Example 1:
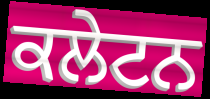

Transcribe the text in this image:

ਕਲੇਟਨ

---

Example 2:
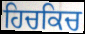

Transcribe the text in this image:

ਹਿਚਕਿਚ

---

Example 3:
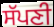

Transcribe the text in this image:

ਸੱਪਣੀ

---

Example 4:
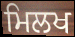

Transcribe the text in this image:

ਮਿਲਖ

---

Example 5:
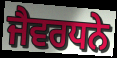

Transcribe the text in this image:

ਜੈਵਰਧਨੇ